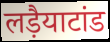
लड़ैयाटांड